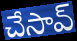
చేసావ్